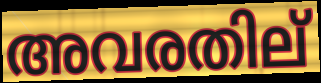
അവരതില്